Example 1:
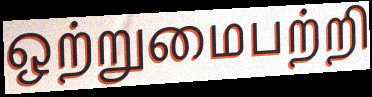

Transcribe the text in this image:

ஒற்றுமைபற்றி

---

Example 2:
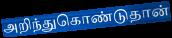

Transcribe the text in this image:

அறிந்துகொண்டுதான்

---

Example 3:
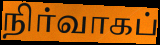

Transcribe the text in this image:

நிர்வாகப்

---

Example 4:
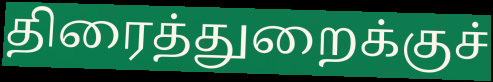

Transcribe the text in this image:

திரைத்துறைக்குச்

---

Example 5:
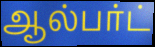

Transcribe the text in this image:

ஆல்பர்ட்